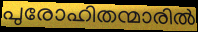
പുരോഹിതന്മാരിൽ